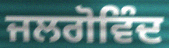
ਜਲਗੋਵਿੰਦ